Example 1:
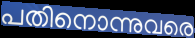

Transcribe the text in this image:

പതിനൊന്നുവരെ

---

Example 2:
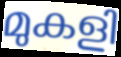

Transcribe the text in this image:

മുകളി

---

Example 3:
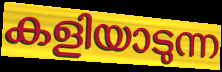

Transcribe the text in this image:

കളിയാടുന്ന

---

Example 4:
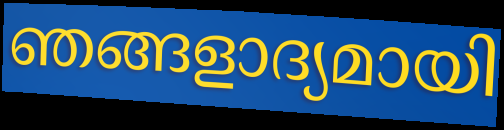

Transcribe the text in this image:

ഞങ്ങളാദ്യമായി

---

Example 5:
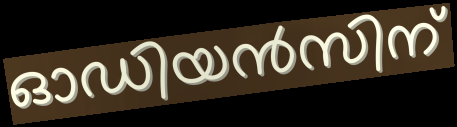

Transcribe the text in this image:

ഓഡിയൻസിന്